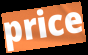
price